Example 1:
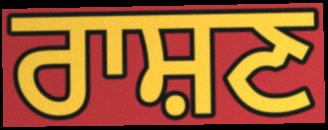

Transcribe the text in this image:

ਰਾਸ਼ਣ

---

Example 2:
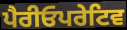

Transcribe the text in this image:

ਪੈਰੀਓਪਰੇਟਿਵ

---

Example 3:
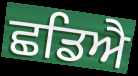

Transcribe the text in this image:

ਛਡਿਐ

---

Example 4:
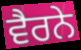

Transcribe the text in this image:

ਵੈਰਨੇ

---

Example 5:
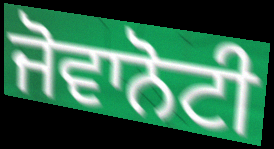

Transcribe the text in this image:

ਜੋਵਾਨੋਟੀ